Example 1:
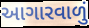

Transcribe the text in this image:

આગારવાળું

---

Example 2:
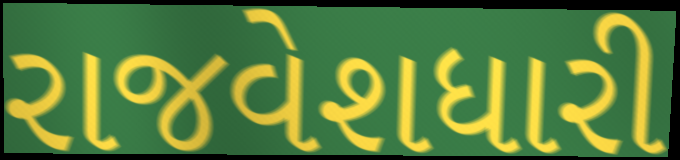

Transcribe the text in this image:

રાજવેશધારી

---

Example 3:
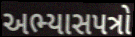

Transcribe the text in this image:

અભ્યાસપત્રો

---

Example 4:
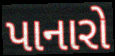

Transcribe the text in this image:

પાનારો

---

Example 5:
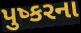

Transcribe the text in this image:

પુષ્કરના